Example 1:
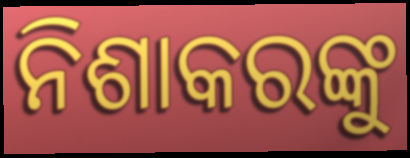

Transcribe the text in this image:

ନିଶାକରଙ୍କୁ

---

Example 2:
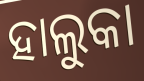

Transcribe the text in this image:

ହାଲୁକା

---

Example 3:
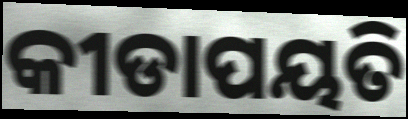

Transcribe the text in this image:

କୀଡାପୟତି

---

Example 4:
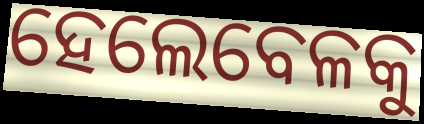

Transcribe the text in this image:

ହେଲେବେଳକୁ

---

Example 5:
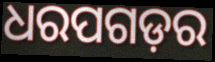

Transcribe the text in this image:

ଧରପଗଡ଼ର